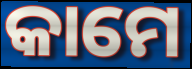
କାମେ